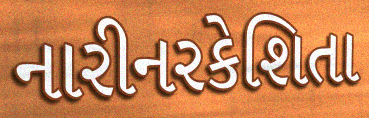
નારીનરકેશિતા